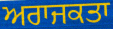
ਅਰਾਜਕਤਾ